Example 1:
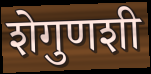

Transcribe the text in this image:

शेगुणशी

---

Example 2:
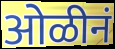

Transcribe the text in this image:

ओळीनं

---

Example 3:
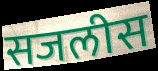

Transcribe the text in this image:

सजलीस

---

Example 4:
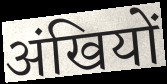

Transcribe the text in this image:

अंखियों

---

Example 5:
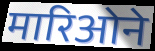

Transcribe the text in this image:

मारिओने